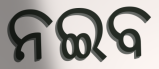
ନଇବ